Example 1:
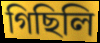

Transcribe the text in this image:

গিছিলি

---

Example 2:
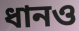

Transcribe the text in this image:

ধানও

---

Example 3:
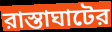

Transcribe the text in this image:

রাস্তাঘাটের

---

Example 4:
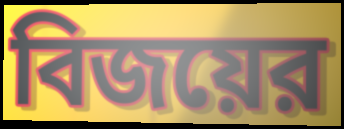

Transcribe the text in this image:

বিজয়ের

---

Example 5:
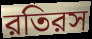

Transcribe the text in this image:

রতিরস